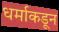
धर्माकडून